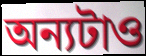
অন্যটাও